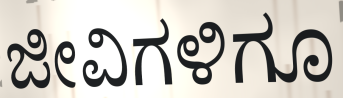
ಜೀವಿಗಳಿಗೂ